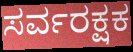
ಸರ್ವರಕ್ಷಕ